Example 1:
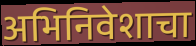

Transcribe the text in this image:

अभिनिवेशाचा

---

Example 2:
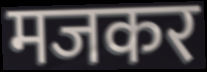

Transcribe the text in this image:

मजकर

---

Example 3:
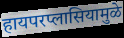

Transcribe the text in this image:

हायपरप्लासियामुळे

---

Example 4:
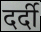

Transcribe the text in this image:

दर्दी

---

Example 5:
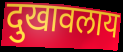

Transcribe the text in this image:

दुखावलाय